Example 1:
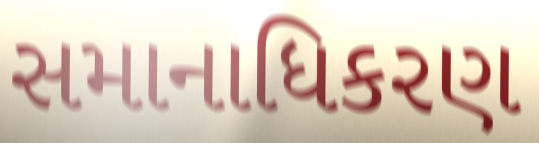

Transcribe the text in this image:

સમાનાધિકરણ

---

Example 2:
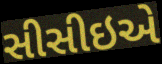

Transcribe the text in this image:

સીસીઇએ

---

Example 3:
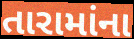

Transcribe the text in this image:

તારામાંના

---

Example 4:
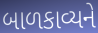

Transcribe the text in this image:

બાળકાવ્યને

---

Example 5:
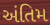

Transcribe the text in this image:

અંતિમ